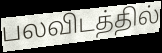
பலவிடத்தில்